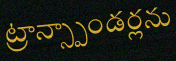
ట్రాన్స్పాండర్లను